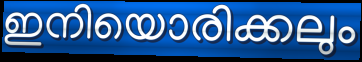
ഇനിയൊരിക്കലും